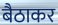
बैठाकर